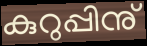
കുറുപ്പിനു്